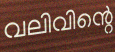
വലിവിന്റെ